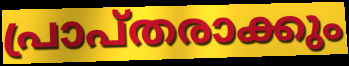
പ്രാപ്തരാക്കും